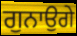
ਗੁਨਾਉਗੇ